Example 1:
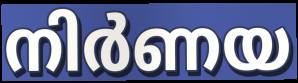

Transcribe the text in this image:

നിർണയ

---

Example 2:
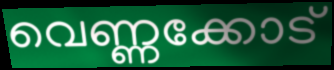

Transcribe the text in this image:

വെണ്ണക്കോട്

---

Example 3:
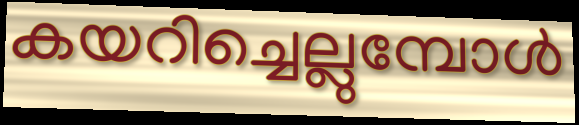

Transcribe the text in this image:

കയറിച്ചെല്ലുമ്പോൾ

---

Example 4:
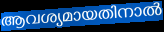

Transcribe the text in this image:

ആവശ്യമായതിനാൽ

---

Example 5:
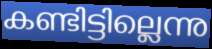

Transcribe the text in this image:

കണ്ടിട്ടില്ലെന്നു